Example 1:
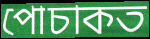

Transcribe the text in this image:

পোচাকত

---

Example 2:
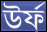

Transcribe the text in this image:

উৰ্ফ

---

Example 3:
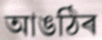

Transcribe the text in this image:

আঙঠিৰ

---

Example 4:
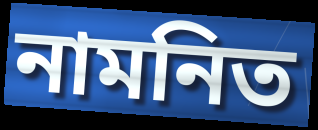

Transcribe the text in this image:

নামনিত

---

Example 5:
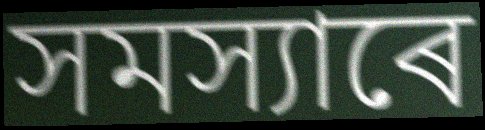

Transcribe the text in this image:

সমস্যাৰে